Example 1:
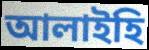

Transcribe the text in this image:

আলাইহি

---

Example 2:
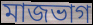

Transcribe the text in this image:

মাজভাগ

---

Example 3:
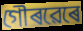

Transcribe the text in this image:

গৌৰৱেৰে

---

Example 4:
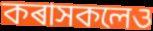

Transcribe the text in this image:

কৰাসকলেও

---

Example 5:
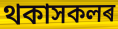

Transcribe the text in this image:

থকাসকলৰ